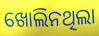
ଖୋଲିନଥିଲା